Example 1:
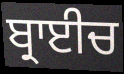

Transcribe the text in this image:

ਬ੍ਰਾਈਚ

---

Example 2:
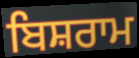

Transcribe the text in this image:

ਬਿਸ਼ਰਾਮ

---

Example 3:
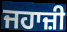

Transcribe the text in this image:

ਜਹਾਜ਼ੀ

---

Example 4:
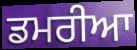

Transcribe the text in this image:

ਡਮਰੀਆ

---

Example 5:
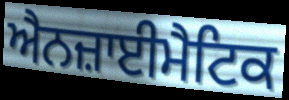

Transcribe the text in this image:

ਐਨਜ਼ਾਈਮੈਟਿਕ